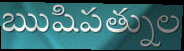
ఋషిపత్నుల